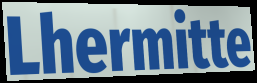
Lhermitte